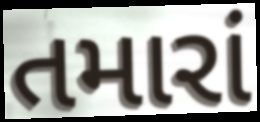
તમારાં